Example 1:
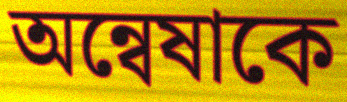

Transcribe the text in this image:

অন্বেষাকে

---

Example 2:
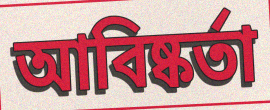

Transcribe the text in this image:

আবিষ্কর্তা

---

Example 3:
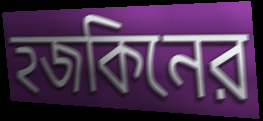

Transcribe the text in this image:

হজকিনের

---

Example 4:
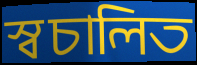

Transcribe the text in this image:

স্বচালিত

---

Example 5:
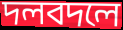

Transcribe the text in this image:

দলবদলে